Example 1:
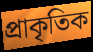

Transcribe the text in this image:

প্রাকৃতিক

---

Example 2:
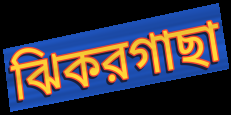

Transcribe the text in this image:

ঝিকরগাছা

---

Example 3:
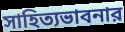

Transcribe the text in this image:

সাহিত্যভাবনার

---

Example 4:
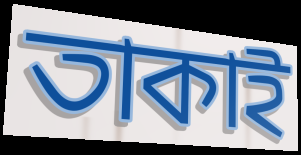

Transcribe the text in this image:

তাকাই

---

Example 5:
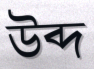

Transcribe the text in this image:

উব্দ